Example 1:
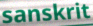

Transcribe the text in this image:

sanskrit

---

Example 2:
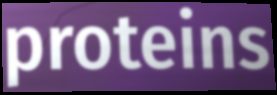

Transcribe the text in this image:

proteins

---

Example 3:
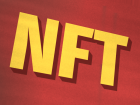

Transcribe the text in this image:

NFT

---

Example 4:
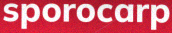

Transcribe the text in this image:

sporocarp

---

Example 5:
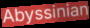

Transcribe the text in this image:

Abyssinian